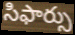
సిఫార్సు